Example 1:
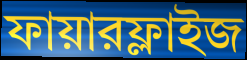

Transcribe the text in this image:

ফায়ারফ্লাইজ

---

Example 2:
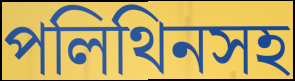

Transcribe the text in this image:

পলিথিনসহ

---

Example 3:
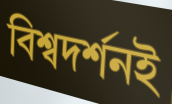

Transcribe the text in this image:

বিশ্বদর্শনই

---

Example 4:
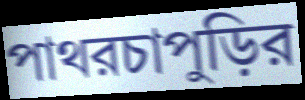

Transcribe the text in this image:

পাথরচাপুড়ির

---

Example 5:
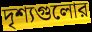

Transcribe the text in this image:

দৃশ্যগুলোর